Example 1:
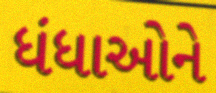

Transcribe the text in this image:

ધંધાઓને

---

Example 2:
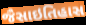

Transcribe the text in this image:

જૈસાઇતિહાસ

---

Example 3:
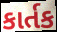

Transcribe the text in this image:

કાર્તક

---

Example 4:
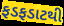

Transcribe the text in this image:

ફડફડાટથી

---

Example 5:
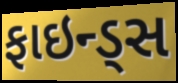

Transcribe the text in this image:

ફાઇન્ડ્સ